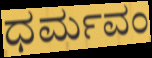
ಧರ್ಮವಂ